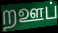
றஊப்